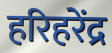
हरिहरेंद्र